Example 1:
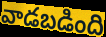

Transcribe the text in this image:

వాడబడింది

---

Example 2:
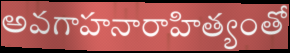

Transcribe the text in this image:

అవగాహనారాహిత్యంతో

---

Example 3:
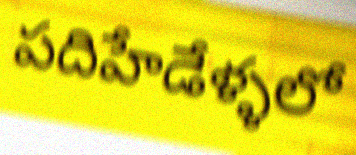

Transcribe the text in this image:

పదిహేడేళ్ళలో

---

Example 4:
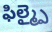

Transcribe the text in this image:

ఫిల్మ్పై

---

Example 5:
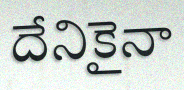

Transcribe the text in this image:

దేనికైనా